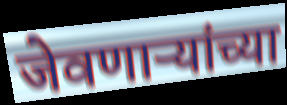
जेवणाऱ्यांच्या